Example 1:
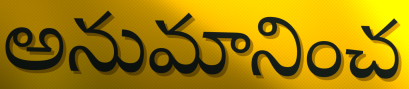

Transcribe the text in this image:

అనుమానించ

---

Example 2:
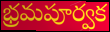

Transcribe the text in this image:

భ్రమపూర్వక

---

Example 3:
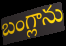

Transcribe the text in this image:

బంగ్లాను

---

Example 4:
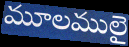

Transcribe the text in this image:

మూలములై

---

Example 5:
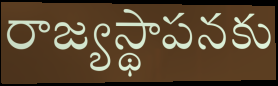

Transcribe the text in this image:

రాజ్యస్థాపనకు